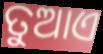
ତୁଆଏ